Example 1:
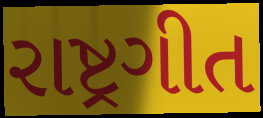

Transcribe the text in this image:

રાષ્ટ્રગીત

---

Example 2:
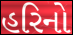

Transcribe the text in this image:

હરિનો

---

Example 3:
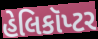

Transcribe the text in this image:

હેલિકૉપ્ટર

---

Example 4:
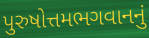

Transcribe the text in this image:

પુરુષોત્તમભગવાનનું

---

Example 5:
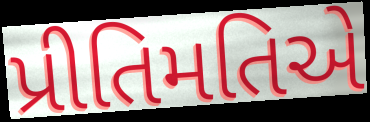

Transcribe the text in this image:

પ્રીતિમતિએ